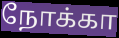
நோக்கா